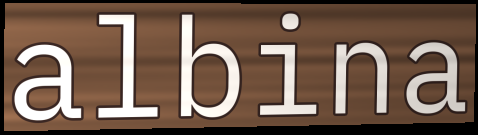
albina